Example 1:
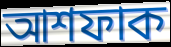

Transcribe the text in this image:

আশফাক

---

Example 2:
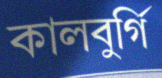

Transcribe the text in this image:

কালবুর্গি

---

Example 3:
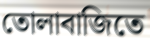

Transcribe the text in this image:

তোলাবাজিতে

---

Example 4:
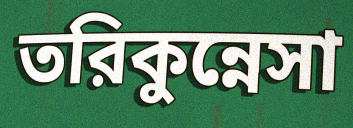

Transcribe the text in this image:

তরিকুন্নেসা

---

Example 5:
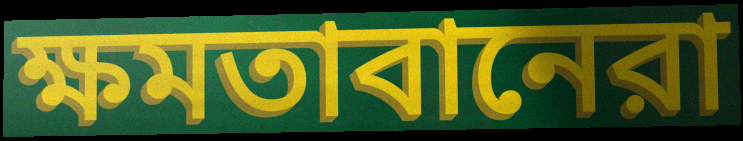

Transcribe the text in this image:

ক্ষমতাবানেরা